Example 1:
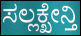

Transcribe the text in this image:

ಸಲ್ಲಕ್ಖೇನ್ತಿ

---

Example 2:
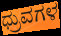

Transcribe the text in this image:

ಧ್ರುವಗಳ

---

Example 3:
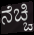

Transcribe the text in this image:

ನೆಚ್ಚಿ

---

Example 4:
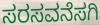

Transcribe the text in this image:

ಸರಸವನೆಸಗಿ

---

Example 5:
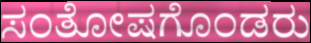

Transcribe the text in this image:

ಸಂತೋಷಗೊಂಡರು